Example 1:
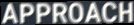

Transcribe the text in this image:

APPROACH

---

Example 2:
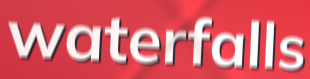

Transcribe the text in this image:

waterfalls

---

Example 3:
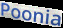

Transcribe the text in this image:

Poonia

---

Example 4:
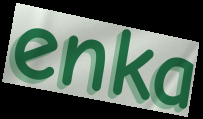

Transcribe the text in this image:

enka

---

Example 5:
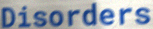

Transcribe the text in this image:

Disorders